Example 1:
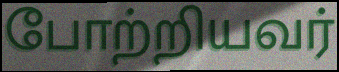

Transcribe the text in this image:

போற்றியவர்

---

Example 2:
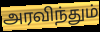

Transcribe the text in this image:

அரவிந்தும்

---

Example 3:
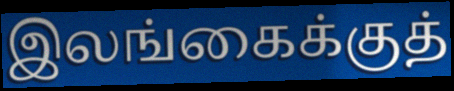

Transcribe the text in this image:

இலங்கைக்குத்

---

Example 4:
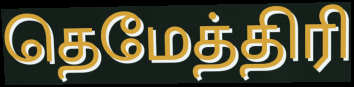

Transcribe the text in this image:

தெமேத்திரி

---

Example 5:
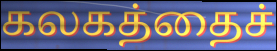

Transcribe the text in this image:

கலகத்தைச்